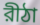
রীঠা